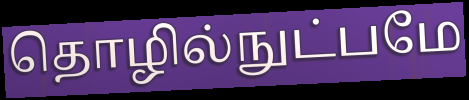
தொழில்நுட்பமே